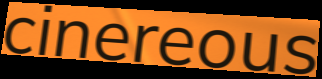
cinereous